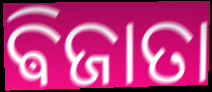
ଵିଜାତା